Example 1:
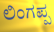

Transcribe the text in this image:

ಲಿಂಗಪ್ಪ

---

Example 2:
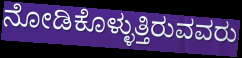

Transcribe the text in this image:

ನೋಡಿಕೊಳ್ಳುತ್ತಿರುವವರು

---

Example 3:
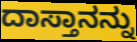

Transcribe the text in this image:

ದಾಸ್ತಾನನ್ನು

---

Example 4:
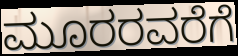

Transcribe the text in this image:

ಮೂರರವರೆಗೆ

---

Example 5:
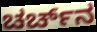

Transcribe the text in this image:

ಚರ್ಚ್‌ನ